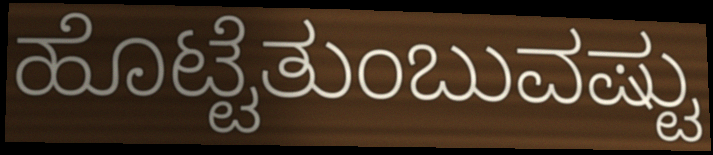
ಹೊಟ್ಟೆತುಂಬುವಷ್ಟು